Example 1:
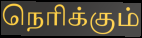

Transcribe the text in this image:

நெரிக்கும்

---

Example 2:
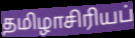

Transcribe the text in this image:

தமிழாசிரியப்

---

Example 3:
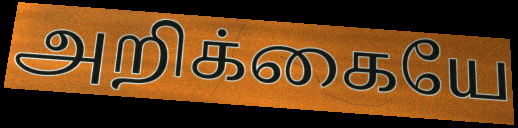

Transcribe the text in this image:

அறிக்கையே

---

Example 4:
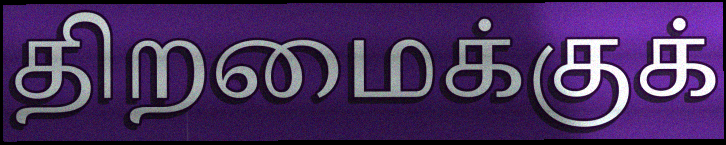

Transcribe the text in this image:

திறமைக்குக்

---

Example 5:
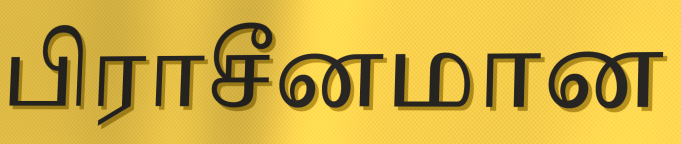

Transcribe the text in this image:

பிராசீனமான